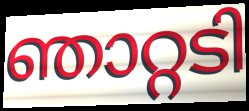
ഞാറ്റടി